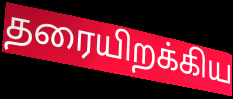
தரையிறக்கிய